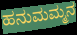
ಹನುಮಮ್ಮನ